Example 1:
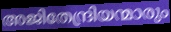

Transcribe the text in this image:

അജിതേന്ദ്രിയന്മാരും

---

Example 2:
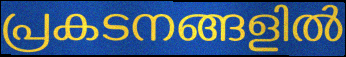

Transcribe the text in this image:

പ്രകടനങ്ങളിൽ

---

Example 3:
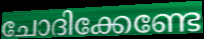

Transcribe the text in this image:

ചോദിക്കേണ്ടേ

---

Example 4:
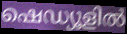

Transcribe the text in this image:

ഷെഡ്യൂളിൽ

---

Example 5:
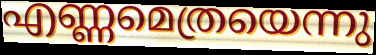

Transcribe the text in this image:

എണ്ണമെത്രയെന്നു